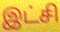
இட்சி